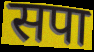
सपा